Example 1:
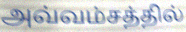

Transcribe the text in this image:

அவ்வம்சத்தில்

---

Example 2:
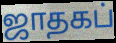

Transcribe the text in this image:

ஜாதகப்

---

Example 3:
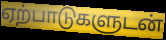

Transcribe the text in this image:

ஏற்பாடுகளுடன்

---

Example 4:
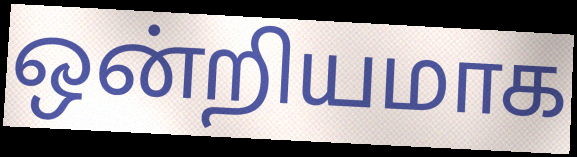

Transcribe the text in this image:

ஒன்றியமாக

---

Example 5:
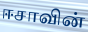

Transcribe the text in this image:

ஈசாவின்